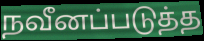
நவீனப்படுத்த